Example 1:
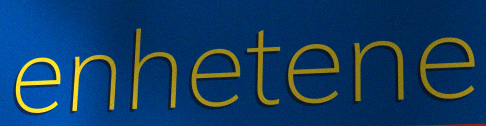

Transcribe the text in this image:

enhetene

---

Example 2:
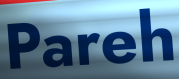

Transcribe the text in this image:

Pareh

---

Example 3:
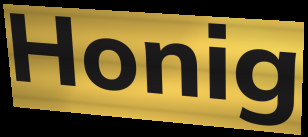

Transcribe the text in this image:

Honig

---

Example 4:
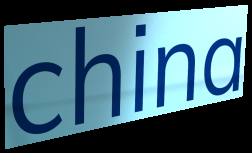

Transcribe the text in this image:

china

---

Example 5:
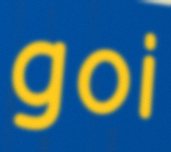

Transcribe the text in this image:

goi